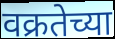
वक्रतेच्या